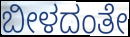
ಬೀಳದಂತೇ